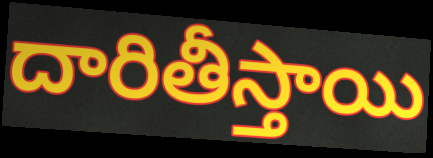
దారితీస్తాయి